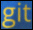
git